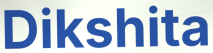
Dikshita